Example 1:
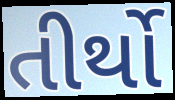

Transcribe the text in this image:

તીર્થો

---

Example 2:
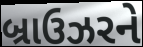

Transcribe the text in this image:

બ્રાઉઝરને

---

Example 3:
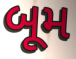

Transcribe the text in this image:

બૂમ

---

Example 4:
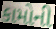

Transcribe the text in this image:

કામોની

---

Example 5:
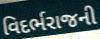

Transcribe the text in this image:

વિદર્ભરાજની